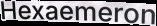
Hexaemeron